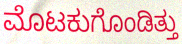
ಮೊಟಕುಗೊಂಡಿತ್ತು